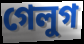
গেলুগ